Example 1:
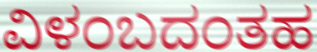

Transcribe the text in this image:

ವಿಳಂಬದಂತಹ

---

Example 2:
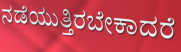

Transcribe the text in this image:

ನಡೆಯುತ್ತಿರಬೇಕಾದರೆ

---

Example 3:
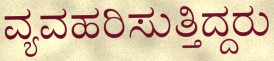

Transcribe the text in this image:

ವ್ಯವಹರಿಸುತ್ತಿದ್ದರು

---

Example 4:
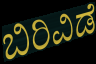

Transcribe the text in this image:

ಬಿರಿವಿಡೆ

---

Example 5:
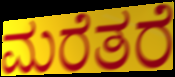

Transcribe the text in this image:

ಮರೆತರೆ